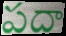
పదా